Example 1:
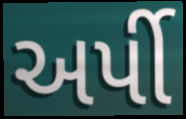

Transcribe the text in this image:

અર્પી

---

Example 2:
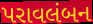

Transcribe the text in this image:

પરાવલંબન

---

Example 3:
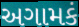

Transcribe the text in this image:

અગામકં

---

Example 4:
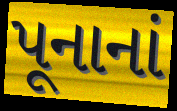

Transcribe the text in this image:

પૂનાનાં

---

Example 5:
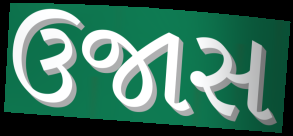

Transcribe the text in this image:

ઉજાસ